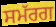
ਸਮੱਰਗ